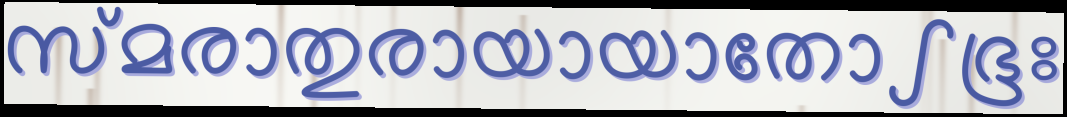
സ്മരാതുരായായാതോഽഭൂഃ